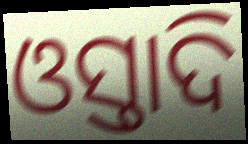
ଓସ୍ତାଦି